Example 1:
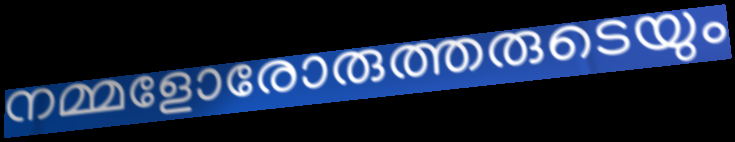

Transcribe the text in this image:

നമ്മളോരോരുത്തരുടെയും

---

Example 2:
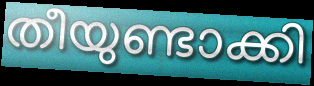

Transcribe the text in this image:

തീയുണ്ടാക്കി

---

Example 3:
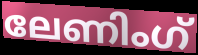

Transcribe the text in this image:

ലേണിംഗ്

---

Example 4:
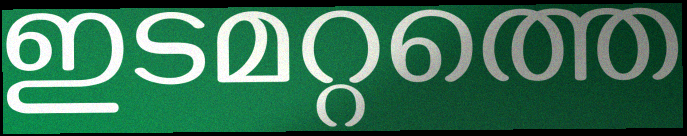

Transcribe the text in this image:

ഇടമറ്റത്തെ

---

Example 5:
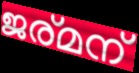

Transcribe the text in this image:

ജര്മന്